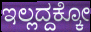
ಇಲ್ಲದ್ದಕ್ಕೋ